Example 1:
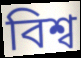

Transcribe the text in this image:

বিশ্ব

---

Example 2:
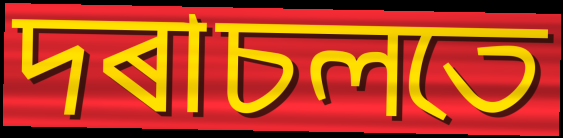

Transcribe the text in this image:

দৰাচলতে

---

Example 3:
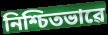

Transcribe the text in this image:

নিশ্চিতভাৱে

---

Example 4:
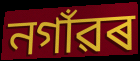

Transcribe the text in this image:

নগাঁৱৰ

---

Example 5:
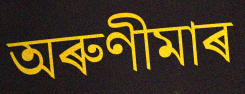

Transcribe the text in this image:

অৰুণীমাৰ